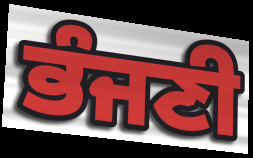
ਭੰਜਣੀ